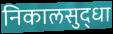
निकालसुद्धा